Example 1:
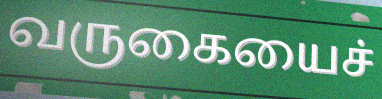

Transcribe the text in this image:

வருகையைச்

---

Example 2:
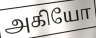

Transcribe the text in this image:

அகியோ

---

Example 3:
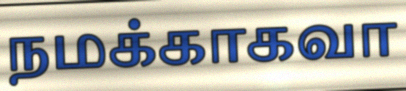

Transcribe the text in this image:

நமக்காகவா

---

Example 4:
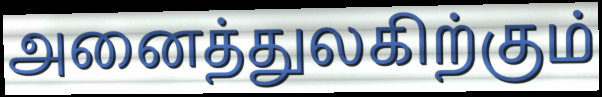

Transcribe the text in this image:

அனைத்துலகிற்கும்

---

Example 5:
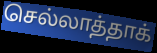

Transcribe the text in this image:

செல்லாத்தாக்